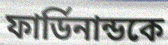
ফার্ডিনান্ডকে